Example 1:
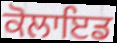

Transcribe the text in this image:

ਕੋਲਾਇਡ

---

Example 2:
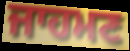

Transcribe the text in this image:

ਜਾਹਮਣ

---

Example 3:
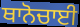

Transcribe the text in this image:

ਥਾਨੋਚਾਈ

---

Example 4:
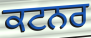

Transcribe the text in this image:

ਕਟਨਰ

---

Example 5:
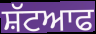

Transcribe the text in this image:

ਸ਼ੱਟਆਫ